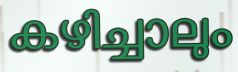
കഴിച്ചാലും